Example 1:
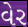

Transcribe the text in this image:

વેર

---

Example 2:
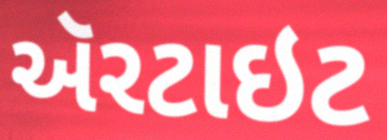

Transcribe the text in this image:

ઍરટાઇટ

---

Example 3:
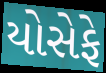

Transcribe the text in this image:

યોસેફે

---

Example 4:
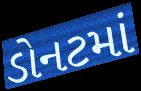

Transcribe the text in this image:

ડોનટમાં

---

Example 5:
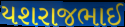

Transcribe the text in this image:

યશરાજભાઈ